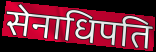
सेनाधिपति